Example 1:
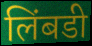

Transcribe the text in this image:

लिंबडी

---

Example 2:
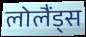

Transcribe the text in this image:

लोलैंड्स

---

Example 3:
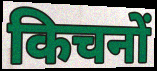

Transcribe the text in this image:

किचनों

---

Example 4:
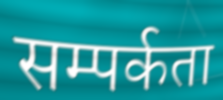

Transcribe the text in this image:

सम्पर्कता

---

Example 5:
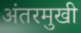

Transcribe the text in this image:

अंतरमुखी